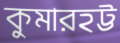
কুমারহট্ট